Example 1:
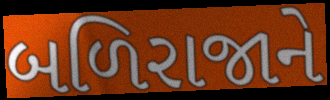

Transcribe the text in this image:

બળિરાજાને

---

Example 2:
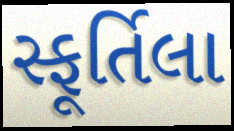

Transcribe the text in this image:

સ્ફૂર્તિલા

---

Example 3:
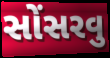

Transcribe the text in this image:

સોંસરવુ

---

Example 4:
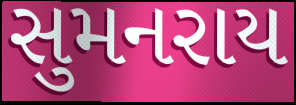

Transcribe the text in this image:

સુમનરાય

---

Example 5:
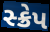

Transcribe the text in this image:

સ્ક્રેપ